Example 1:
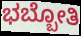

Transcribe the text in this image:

ಭಬ್ಬೋತಿ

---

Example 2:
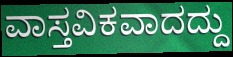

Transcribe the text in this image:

ವಾಸ್ತವಿಕವಾದದ್ದು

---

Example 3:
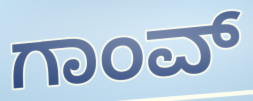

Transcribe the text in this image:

ಗಾಂವ್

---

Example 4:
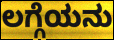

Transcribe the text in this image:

ಲಗ್ಗೆಯನು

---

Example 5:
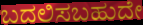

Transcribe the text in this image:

ಬದಲಿಸಬಹುದೇ